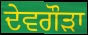
ਦੇਵਗੌੜਾ